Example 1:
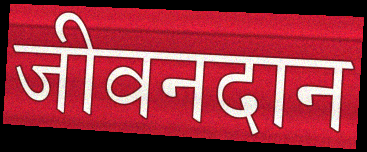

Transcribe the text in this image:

जीवनदान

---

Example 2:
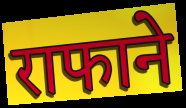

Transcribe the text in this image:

राफाने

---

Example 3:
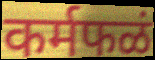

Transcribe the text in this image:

कर्मफळं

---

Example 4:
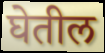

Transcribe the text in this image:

घेतील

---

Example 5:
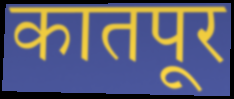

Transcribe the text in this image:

कातपूर